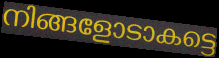
നിങ്ങളോടാകട്ടെ